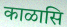
काळासि